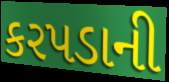
કરપડાની